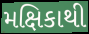
મક્ષિકાથી